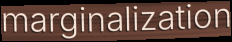
marginalization